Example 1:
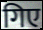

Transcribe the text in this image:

गिए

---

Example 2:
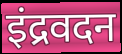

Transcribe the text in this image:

इंद्रवदन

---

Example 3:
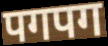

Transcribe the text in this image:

पगपग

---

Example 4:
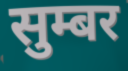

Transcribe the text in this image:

सुम्बर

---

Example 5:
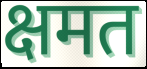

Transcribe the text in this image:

क्षमत